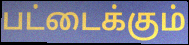
பட்டைக்கும்